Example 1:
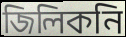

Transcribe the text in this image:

জিলিকনি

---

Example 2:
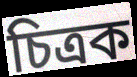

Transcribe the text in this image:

চিত্ৰক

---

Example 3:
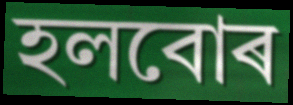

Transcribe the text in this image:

হলবোৰ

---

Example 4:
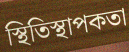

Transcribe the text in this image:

স্থিতিস্থাপকতা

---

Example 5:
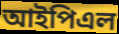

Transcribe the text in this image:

আইপিএল